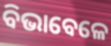
ବିଭାବେଳେ